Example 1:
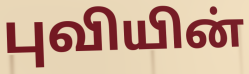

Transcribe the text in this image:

புவியின்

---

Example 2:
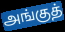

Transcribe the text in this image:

அங்குத்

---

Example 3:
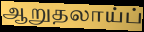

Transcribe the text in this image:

ஆறுதலாய்ப்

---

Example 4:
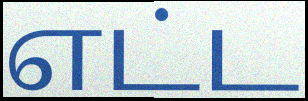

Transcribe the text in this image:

எட்ட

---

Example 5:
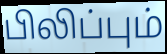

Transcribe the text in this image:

பிலிப்பும்